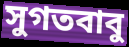
সুগতবাবু